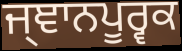
ਜ੍ਞਾਨਪੂਰ੍ਵਕ